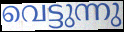
വെട്ടുന്നു